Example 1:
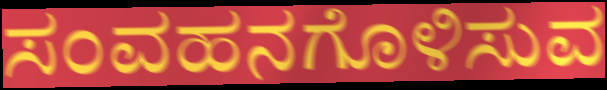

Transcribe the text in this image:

ಸಂವಹನಗೊಳಿಸುವ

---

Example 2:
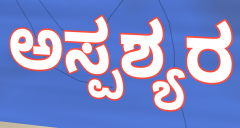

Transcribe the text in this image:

ಅಸ್ಪಶ್ಯರ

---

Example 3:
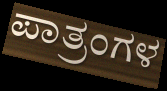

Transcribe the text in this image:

ಪಾತ್ರಂಗಳ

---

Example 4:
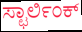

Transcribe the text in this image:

ಸ್ಟಾರ್ಲಿಂಕ್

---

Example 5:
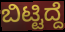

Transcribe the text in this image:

ಬಿಟ್ಟಿದ್ದೆ